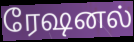
ரேஷனல்